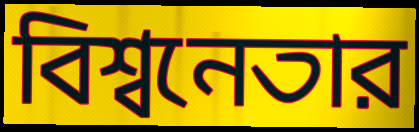
বিশ্বনেতার